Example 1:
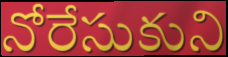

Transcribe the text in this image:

నోరేసుకుని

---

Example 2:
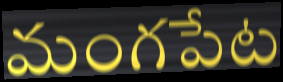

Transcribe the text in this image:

మంగపేట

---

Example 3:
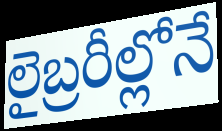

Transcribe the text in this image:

లైబ్రరీల్లోనే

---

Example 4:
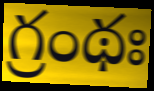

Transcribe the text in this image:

గ్రంథః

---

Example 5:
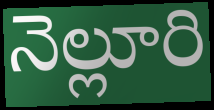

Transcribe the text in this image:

నెల్లూరి